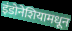
इंडोनेशियामधून